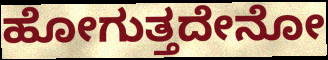
ಹೋಗುತ್ತದೇನೋ